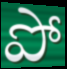
పో